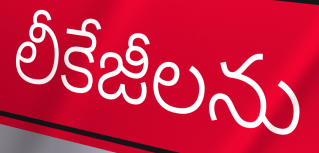
లీకేజీలను